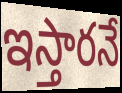
ఇస్తారనే